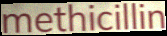
methicillin